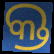
କ୍ତ